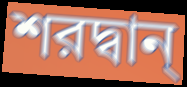
শরদ্বান্